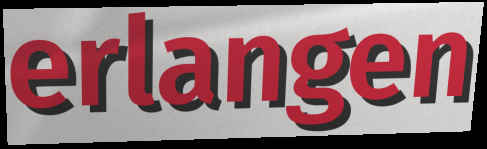
erlangen